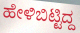
ಹೇಳಿಬಿಟ್ಟಿದ್ದ